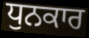
ਧੁਨਕਾਰ